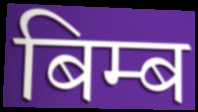
बिम्ब